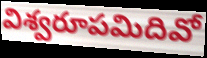
విశ్వరూపమిదివో